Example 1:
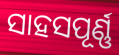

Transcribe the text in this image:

ସାହସପୂର୍ଣ୍ଣ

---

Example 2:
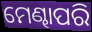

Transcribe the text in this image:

ମେଣ୍ଢାପରି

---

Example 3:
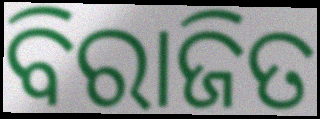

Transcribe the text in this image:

ବିରାଜିତ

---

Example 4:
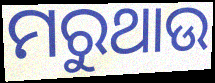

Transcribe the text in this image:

ମରୁଥାଉ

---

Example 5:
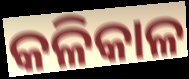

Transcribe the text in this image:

କଳିକାଳ